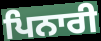
ਪਿਨਾਰੀ